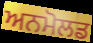
ਅਨਮੋਲਡ